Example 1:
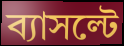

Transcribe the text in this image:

ব্যাসল্টে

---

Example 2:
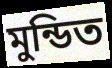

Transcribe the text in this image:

মুন্ডিত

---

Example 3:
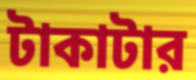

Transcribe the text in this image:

টাকাটার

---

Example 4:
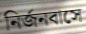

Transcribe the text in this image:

নির্জনবাসে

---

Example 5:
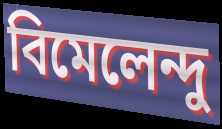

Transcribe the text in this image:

বিমেলেন্দু